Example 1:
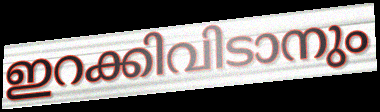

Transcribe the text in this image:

ഇറക്കിവിടാനും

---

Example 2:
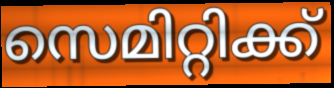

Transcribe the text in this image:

സെമിറ്റിക്ക്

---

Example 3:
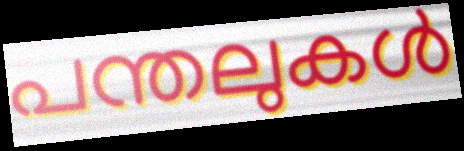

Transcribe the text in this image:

പന്തലുകൾ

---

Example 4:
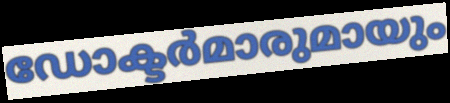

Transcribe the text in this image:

ഡോക്ടർമാരുമായും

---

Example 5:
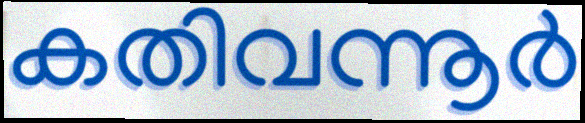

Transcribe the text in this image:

കതിവന്നൂർ